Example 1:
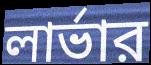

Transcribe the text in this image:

লার্ভার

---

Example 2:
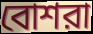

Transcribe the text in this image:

বোশরা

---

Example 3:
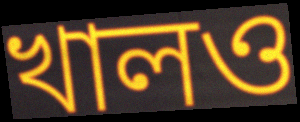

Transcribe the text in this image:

খালও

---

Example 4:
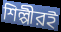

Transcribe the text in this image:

শিল্পীরই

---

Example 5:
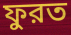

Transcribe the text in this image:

ফুরত